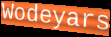
Wodeyars